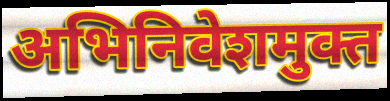
अभिनिवेशमुक्त